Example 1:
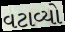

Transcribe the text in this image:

વટાવ્યો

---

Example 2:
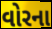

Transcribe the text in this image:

વોરના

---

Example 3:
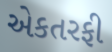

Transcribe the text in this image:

એકતરફી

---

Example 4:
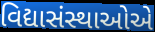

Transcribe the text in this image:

વિદ્યાસંસ્થાઓએ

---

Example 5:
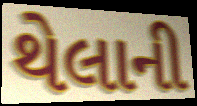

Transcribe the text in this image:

થેલાની